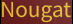
Nougat